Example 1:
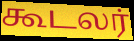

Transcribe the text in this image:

கூடலர்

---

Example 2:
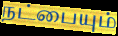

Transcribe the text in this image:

நட்பையும்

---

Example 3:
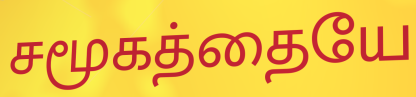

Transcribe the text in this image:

சமூகத்தையே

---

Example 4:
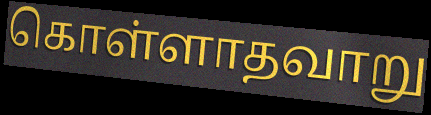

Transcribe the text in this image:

கொள்ளாதவாறு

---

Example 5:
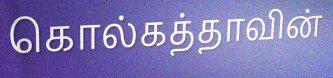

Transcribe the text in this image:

கொல்கத்தாவின்